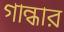
গান্ধার